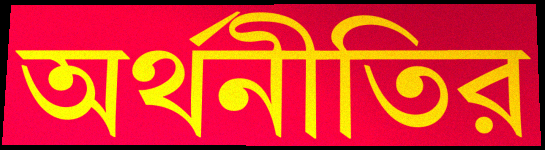
অর্থনীতির